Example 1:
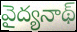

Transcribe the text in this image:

వైద్యనాథ్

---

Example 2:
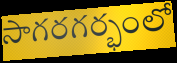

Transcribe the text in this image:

సాగరగర్భంలో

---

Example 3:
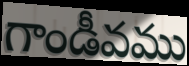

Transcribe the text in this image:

గాండీవము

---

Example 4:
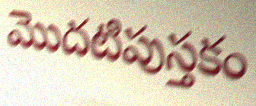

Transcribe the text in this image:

మొదటిపుస్తకం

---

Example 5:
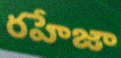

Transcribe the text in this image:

రహేజా